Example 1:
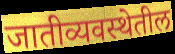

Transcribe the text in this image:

जातीव्यवस्थेतील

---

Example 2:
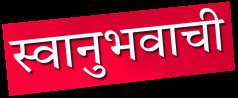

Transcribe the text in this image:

स्वानुभवाची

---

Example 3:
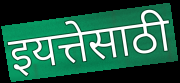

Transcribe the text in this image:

इयत्तेसाठी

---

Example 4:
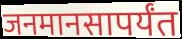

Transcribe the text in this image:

जनमानसापर्यंत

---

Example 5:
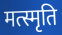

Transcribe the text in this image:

मत्स्मृति